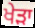
ਖੇੜਾ